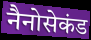
नैनोसेकंड